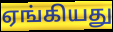
ஏங்கியது